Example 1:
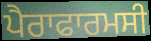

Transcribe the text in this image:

ਪੈਰਾਫਾਰਮਸੀ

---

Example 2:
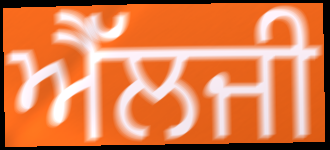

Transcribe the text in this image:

ਐੱਲਜੀ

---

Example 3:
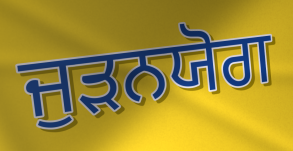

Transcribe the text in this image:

ਜੁੜਨਯੋਗ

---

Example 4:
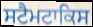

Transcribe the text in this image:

ਸਟੈਮਟਾਕਿਸ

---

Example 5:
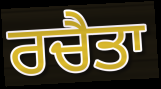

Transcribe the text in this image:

ਰਚੈਤਾ